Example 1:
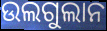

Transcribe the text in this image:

ଉଲଗୁଲାନ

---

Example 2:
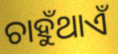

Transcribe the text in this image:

ଚାହୁଁଥାଏଁ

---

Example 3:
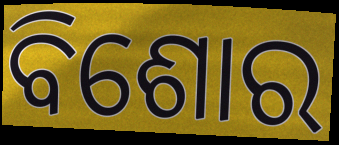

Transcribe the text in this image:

ବିଶୋର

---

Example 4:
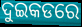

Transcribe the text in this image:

ଦୁଇକଡରେ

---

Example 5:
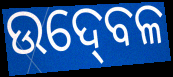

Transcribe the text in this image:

ଉଦ୍‍ବେଳ